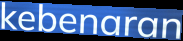
kebenaran